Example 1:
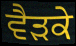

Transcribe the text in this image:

ਵੈੜਕੇ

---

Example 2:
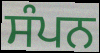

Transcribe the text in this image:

ਸੰਪਨ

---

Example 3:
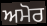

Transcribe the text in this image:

ਅਮੋਰ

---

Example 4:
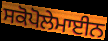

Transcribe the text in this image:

ਸਕੋਪੋਲੇਮਾਈਨ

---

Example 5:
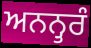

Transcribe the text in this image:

ਅਨਨ੍ਤਰੰ